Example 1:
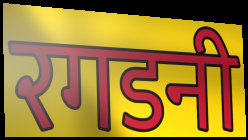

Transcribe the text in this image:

रगडनी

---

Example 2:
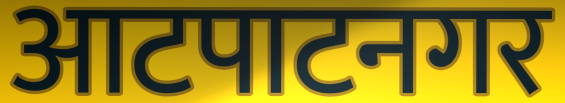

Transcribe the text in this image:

आटपाटनगर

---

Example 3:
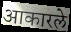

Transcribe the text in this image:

आकारले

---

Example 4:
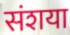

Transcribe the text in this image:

संशया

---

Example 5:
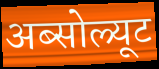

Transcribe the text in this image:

अब्सोल्यूट